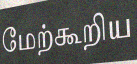
மேற்கூறிய